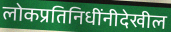
लोकप्रतिनिधींनीदेखील